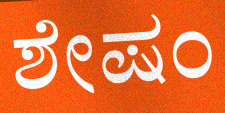
ಶೇಷಂ